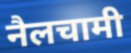
नैलचामी